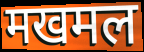
मखमल